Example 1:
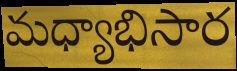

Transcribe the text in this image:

మధ్యాభిసార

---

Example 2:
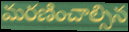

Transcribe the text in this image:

మరణించాల్సిన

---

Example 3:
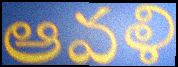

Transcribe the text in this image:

ఆవళి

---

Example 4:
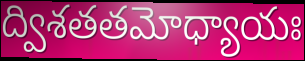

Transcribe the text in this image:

ద్విశతతమోధ్యాయః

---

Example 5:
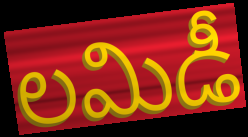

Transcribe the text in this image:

లమిడీ